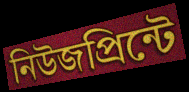
নিউজপ্রিন্টে